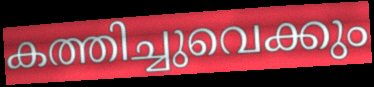
കത്തിച്ചുവെക്കും